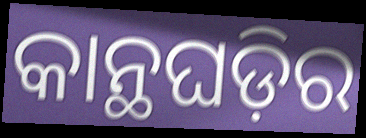
କାନ୍ଥଘଡ଼ିର